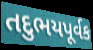
તદુભયપૂર્વક